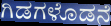
ಗಿಡಗಳೊಡನೆ